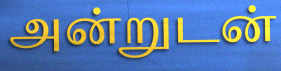
அன்றுடன்